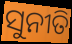
ସୁନୀତି